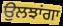
ਉਲਝਾਂਗਾ